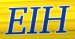
EIH